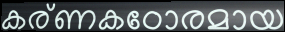
കര്ണകഠോരമായ